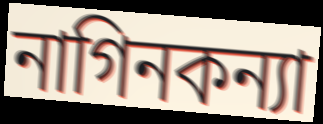
নাগিনকন্যা